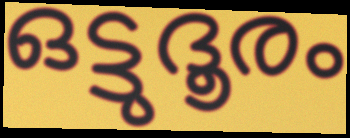
ഒട്ടുദൂരം